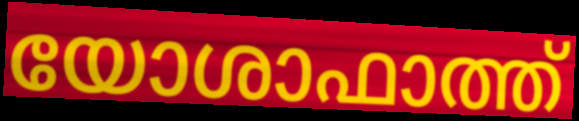
യോശാഫാത്ത്